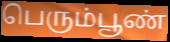
பெரும்பூண்